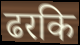
ढरकि